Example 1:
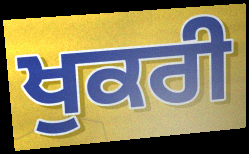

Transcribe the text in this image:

ਖੁਕਰੀ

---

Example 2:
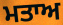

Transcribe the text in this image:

ਮਤਾਅ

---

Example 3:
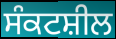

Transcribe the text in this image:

ਸੰਕਟਸ਼ੀਲ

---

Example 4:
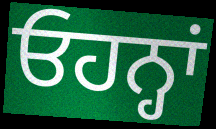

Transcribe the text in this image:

ਓਹਨ੍ਹਾਂ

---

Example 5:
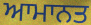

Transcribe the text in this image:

ਆਮਾਨਤ